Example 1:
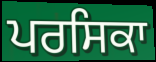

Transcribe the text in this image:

ਪਰਸਿਕਾ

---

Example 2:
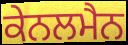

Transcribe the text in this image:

ਕੇਨਲਮੈਨ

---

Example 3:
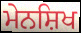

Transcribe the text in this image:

ਮੇਨਸ਼ਿਖ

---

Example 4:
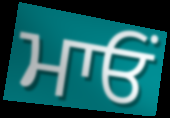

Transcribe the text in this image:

ਮਾਓਂ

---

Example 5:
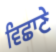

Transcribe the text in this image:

ਵਿਛਾਣੇ